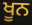
ਖੂਨ